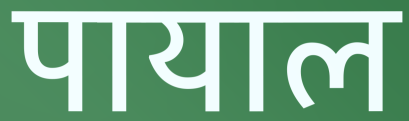
पायाल